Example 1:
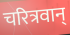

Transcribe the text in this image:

चरित्रवान्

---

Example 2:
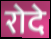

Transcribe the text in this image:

रोदे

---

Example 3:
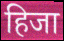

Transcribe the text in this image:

हिजा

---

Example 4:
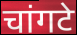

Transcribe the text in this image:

चांगटे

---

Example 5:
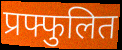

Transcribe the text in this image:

प्रफ्फुलित